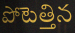
పోటెత్తిన